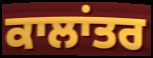
ਕਾਲਾਂਤਰ